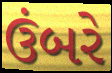
ઉંબરે